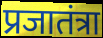
प्रजातंत्रा